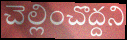
చెల్లించొద్దని